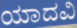
ಯಾದವಿ